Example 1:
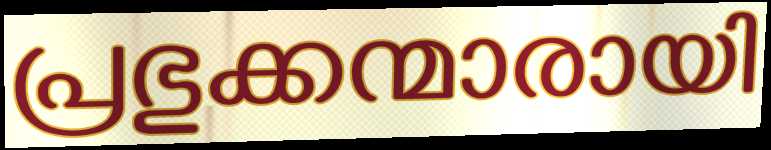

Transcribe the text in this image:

പ്രഭുക്കന്മാരായി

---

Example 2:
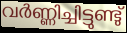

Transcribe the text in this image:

വർണ്ണിച്ചിട്ടുണ്ടു്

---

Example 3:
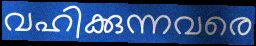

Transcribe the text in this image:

വഹിക്കുന്നവരെ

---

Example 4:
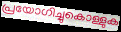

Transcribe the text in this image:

പ്രയോഗിച്ചുകൊള്ളുക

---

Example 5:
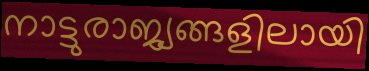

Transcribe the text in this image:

നാട്ടുരാജ്യങ്ങളിലായി